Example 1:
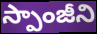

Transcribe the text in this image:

స్పాంజీని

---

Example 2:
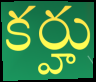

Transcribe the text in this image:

కర్హు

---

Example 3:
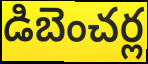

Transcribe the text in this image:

డిబెంచర్ల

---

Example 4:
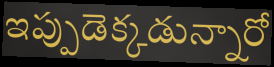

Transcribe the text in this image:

ఇప్పుడెక్కడున్నారో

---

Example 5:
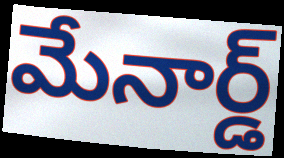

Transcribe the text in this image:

మేనార్డ్